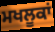
ਮਖਲੂਕਾਂ